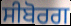
ਸੀਬੋਰਗ